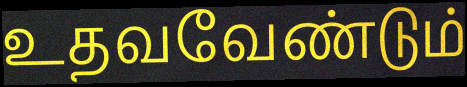
உதவவேண்டும்